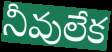
నీవులేక